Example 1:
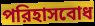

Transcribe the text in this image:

পরিহাসবোধ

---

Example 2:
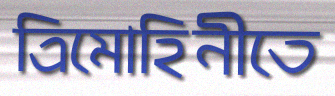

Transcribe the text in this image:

ত্রিমোহিনীতে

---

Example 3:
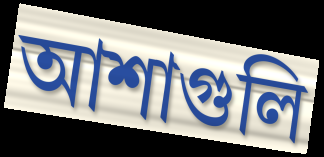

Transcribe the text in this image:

আশাগুলি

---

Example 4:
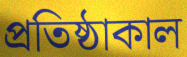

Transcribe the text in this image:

প্রতিষ্ঠাকাল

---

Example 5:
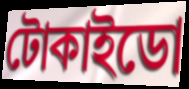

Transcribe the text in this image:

টোকাইডো